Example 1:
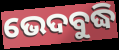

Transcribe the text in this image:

ଭେଦବୁଦ୍ଧି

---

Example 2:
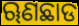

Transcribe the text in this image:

ୠଣଛାଡ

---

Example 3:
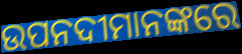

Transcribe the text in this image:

ଉପନଦୀମାନଙ୍କରେ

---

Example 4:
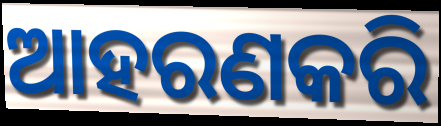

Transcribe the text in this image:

ଆହରଣକରି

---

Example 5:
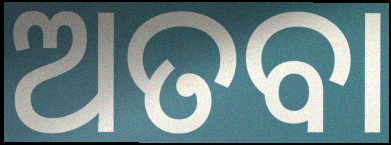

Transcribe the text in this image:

ଅତବା